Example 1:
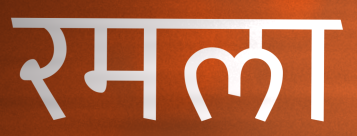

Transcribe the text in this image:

रमला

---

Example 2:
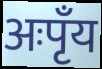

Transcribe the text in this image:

अःपृँय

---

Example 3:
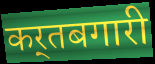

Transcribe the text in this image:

कर्तबगारी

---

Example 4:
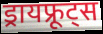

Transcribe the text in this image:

ड्रायफ्रूट्स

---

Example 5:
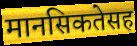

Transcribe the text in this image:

मानसिकतेसह